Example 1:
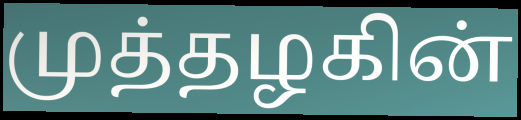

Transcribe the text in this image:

முத்தழகின்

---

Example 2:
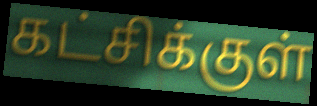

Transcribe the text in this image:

கட்சிக்குள்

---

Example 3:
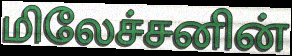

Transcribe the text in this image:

மிலேச்சனின்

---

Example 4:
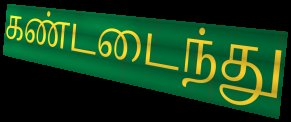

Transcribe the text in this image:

கண்டடைந்து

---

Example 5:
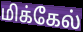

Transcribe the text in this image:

மிக்கேல்